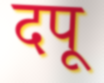
दपू